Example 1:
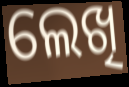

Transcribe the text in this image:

ଲେଖି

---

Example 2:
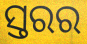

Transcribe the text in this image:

ସ୍ତରର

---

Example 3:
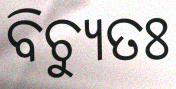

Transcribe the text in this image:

ବିଚ୍ୟୁତଃ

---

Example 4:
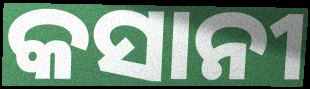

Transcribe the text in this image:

କସାନୀ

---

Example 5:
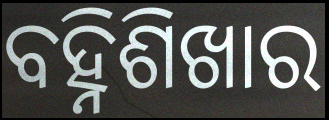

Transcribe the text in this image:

ବହ୍ନିଶିଖାର